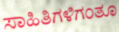
ಸಾಹಿತಿಗಳಿಗಂತೂ